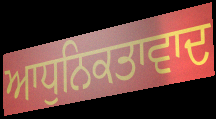
ਆਧੁਨਿਕਤਾਵਾਦ